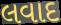
લવાદ